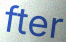
fter